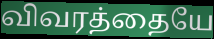
விவரத்தையே